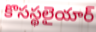
కొసస్థలైయార్